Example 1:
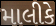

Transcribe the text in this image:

માલીકે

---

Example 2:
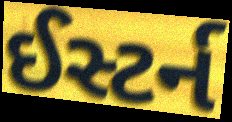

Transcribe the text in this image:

ઈસ્ટર્ન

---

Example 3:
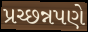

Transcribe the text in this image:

પ્રચ્છન્નપણે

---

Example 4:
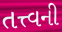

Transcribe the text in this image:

તત્ત્વની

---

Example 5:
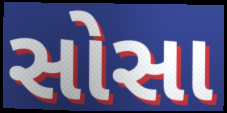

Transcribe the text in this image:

સોસા